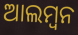
ଆଲମ୍ୱନ